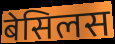
बेसिलस